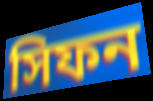
সিফন